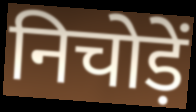
निचोड़ें